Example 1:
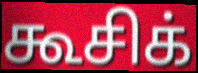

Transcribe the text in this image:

கூசிக்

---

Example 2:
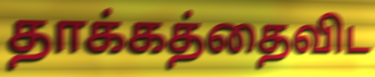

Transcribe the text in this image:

தாக்கத்தைவிட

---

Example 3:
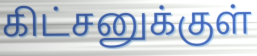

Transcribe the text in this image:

கிட்சனுக்குள்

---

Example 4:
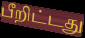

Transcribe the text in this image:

பீறிட்டது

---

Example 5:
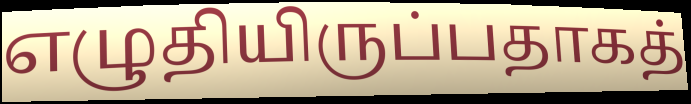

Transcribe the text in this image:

எழுதியிருப்பதாகத்